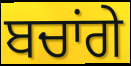
ਬਚਾਂਗੇ